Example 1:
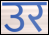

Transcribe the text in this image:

उर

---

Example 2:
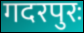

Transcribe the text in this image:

गदरपुरः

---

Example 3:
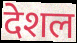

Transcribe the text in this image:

देशल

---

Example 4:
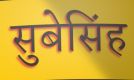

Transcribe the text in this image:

सुबेसिंह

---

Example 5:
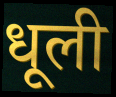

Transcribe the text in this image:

धूली